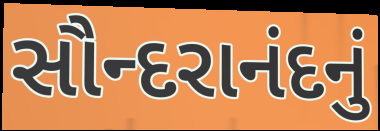
સૌન્દરાનંદનું